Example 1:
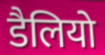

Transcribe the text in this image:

डैलियो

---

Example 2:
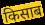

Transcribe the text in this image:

किसाब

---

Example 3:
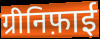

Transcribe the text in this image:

ग्रीनिफ़ाई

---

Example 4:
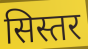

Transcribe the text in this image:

सिस्तर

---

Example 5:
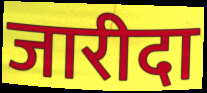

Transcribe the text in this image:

जारीदा